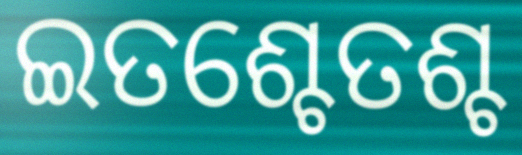
ଇତଶ୍ଚେତଶ୍ଚ